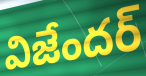
విజేందర్